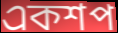
একশপ